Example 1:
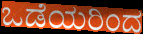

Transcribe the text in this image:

ಒಡೆಯರಿಂದ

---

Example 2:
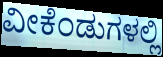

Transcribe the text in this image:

ವೀಕೆಂಡುಗಳಲ್ಲಿ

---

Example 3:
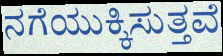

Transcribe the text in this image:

ನಗೆಯುಕ್ಕಿಸುತ್ತವೆ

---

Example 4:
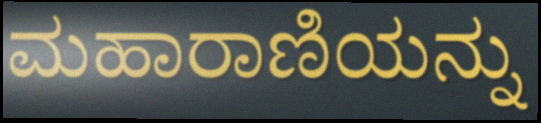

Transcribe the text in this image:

ಮಹಾರಾಣಿಯನ್ನು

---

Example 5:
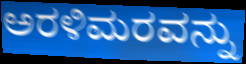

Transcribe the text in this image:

ಅರಳಿಮರವನ್ನು